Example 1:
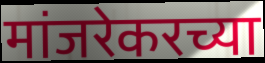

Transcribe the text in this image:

मांजरेकरच्या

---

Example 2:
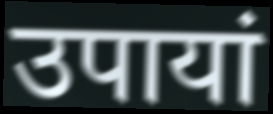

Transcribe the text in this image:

उपायां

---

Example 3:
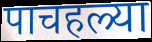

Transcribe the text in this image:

पाचहल्या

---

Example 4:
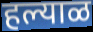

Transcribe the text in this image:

हल्याळ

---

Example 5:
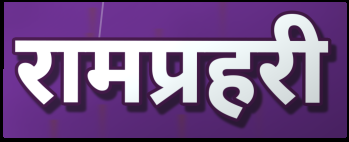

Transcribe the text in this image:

रामप्रहरी